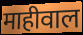
माहीवाल